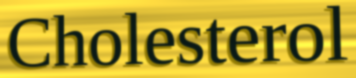
Cholesterol